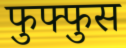
फुफ्फुस